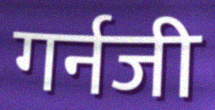
गर्नजी